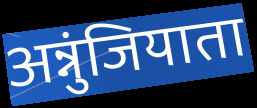
अन्नुंजियाता